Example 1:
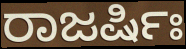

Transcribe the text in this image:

ರಾಜರ್ಷಿಃ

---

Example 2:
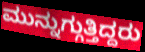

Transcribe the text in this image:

ಮುನ್ನುಗ್ಗುತ್ತಿದ್ದರು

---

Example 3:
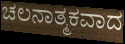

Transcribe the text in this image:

ಚಲನಾತ್ಮಕವಾದ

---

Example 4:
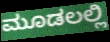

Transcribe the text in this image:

ಮೂಡಲಲ್ಲಿ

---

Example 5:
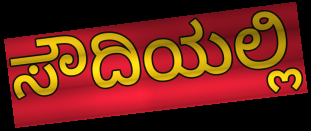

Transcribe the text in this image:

ಸೌದಿಯಲ್ಲಿ